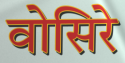
वोसिरे